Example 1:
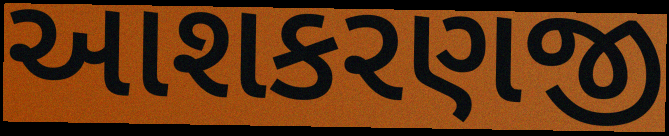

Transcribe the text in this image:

આશકરણજી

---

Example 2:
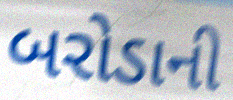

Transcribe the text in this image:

બરોડાની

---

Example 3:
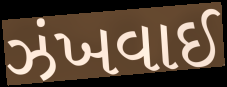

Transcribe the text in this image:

ઝંખવાઈ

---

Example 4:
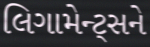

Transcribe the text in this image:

લિગામેન્ટ્સને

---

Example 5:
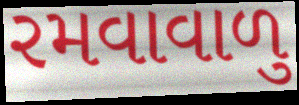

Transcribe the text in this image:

રમવાવાળુ